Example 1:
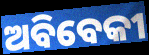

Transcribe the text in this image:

ଅବିବେକୀ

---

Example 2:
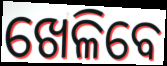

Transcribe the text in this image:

ଖେଳିବେ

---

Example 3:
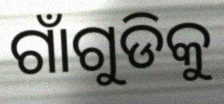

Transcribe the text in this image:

ଗାଁଗୁଡିକୁ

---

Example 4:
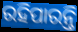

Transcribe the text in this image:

ରହିପାରନ୍ତି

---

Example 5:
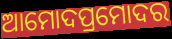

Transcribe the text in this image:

ଆମୋଦପ୍ରମୋଦର